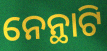
ନେନ୍ଥାଟି